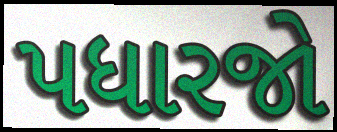
પધારજો